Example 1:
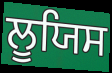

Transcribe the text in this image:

ਲੂਯਿਸ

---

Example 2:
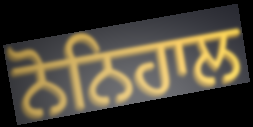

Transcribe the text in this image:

ਨੋਨਿਹਾਲ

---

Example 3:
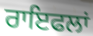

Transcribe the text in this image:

ਰਾਇਫਲਾਂ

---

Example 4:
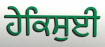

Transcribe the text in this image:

ਹੇਕਿਸੁਈ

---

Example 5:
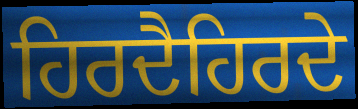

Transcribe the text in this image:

ਹਿਰਦੈਹਿਰਦੇ